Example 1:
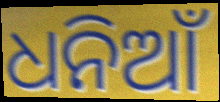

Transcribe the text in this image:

ଧନିଆଁ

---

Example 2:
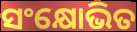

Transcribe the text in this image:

ସଂକ୍ଷୋଭିତ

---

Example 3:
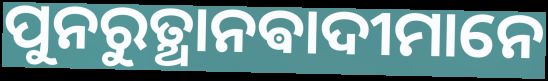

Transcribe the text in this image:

ପୁନରୁତ୍ଥାନଵାଦୀମାନେ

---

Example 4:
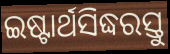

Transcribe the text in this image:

ଇଷ୍ଟାର୍ଥସିଦ୍ଧରସ୍ତୁ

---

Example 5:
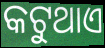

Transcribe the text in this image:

କଟୁଥାଏ